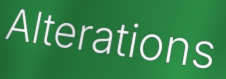
Alterations